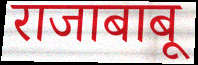
राजाबाबू